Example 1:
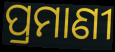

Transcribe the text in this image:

ପ୍ରମାଣୀ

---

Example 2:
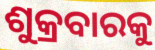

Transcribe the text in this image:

ଶୁକ୍ରବାରକୁ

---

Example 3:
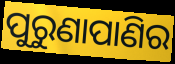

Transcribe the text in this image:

ପୁରୁଣାପାଣିର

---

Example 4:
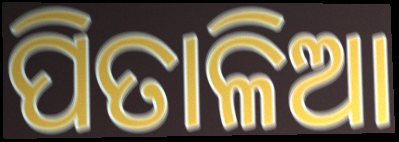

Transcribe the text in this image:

ପିତାଳିଆ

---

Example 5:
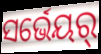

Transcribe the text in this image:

ସର୍ଭେୟର୍